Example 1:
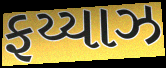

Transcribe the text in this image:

ફય્યાઝ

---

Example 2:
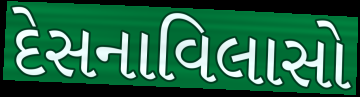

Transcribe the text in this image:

દેસનાવિલાસો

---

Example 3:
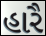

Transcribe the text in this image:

હારૈ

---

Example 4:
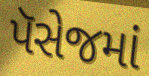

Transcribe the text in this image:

પૅસેજમાં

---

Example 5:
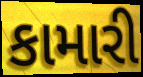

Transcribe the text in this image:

કામારી